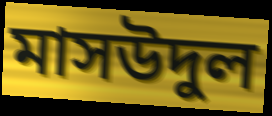
মাসউদুল